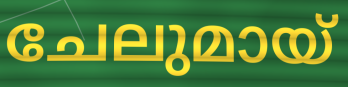
ചേലുമായ്